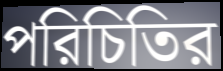
পরিচিতির